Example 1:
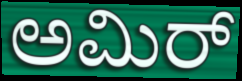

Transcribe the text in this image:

ಅಮಿರ್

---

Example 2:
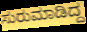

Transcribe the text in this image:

ಸುರುಮಾಡಿದ್ದ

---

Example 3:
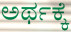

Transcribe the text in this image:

ಅರ್ಥಕ್ಕೆ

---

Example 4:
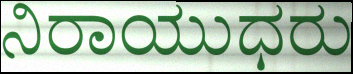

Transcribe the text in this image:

ನಿರಾಯುಧರು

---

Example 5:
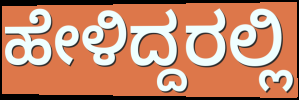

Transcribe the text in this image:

ಹೇಳಿದ್ದರಲ್ಲಿ